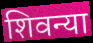
शिवन्या